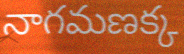
నాగమణక్క